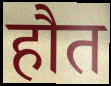
हौत